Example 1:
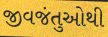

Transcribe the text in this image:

જીવજંતુઓથી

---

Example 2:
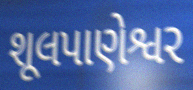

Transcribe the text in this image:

શૂલપાણેશ્વર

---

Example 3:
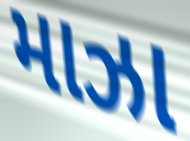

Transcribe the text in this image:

માઝા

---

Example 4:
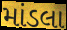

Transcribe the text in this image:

માંડલા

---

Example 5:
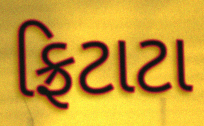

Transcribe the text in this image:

ફ્રિટાટા